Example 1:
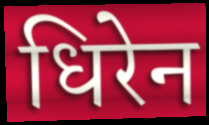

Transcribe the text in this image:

धिरेन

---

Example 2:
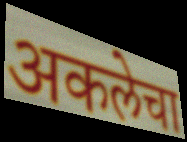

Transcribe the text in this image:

अकलेचा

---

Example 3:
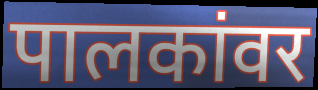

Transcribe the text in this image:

पालकांवर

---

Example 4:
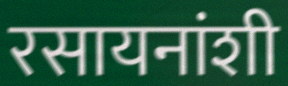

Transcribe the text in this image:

रसायनांशी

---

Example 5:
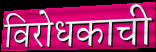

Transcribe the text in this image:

विरोधकाची